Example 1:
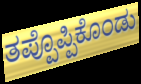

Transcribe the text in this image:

ತಪ್ಪೊಪ್ಪಿಕೊಂಡು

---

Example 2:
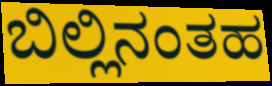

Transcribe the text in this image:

ಬಿಲ್ಲಿನಂತಹ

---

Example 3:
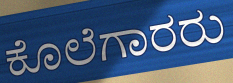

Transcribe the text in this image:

ಕೊಲೆಗಾರರು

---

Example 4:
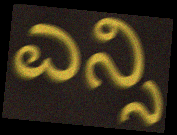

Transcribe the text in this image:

ಎನ್ಸಿ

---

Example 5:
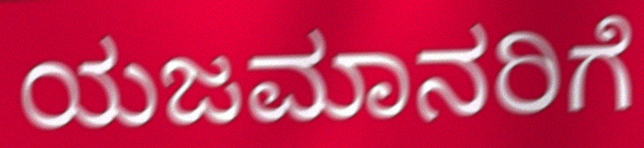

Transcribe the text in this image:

ಯಜಮಾನರಿಗೆ